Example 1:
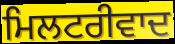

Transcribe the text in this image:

ਮਿਲਟਰੀਵਾਦ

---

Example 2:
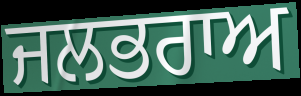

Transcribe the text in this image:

ਜਲਭਰਾਅ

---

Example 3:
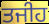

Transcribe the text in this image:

ਤਜੀਹ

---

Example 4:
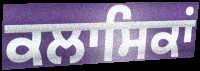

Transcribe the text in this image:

ਕਲਾਸਿਕਾਂ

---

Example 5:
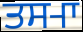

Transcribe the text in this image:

ਤਸ੍ਮਾ